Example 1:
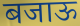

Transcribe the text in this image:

बजाऊ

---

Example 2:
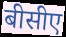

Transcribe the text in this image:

बीसीए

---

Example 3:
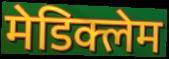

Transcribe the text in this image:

मेडिक्लेम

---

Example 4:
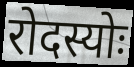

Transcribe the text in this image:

रोदस्योः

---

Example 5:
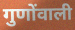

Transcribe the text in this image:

गुणोंवाली